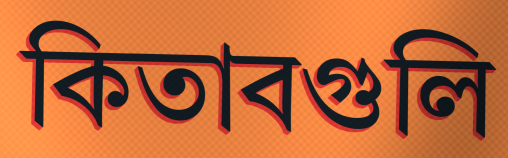
কিতাবগুলি